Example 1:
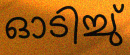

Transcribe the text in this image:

ഓടിച്ചു്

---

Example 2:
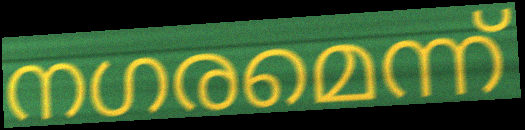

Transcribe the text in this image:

നഗരമെന്ന്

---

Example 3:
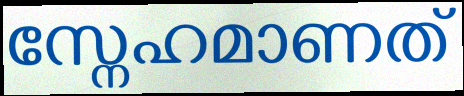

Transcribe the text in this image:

സ്നേഹമാണത്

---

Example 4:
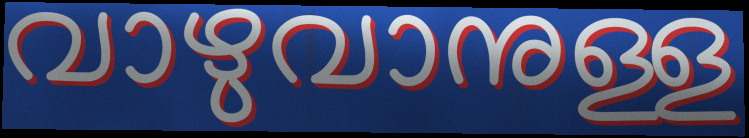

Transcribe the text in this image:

വാഴുവാനുള്ള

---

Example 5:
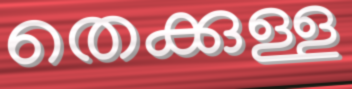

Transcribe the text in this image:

തെക്കുള്ള